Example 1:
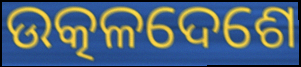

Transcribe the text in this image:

ଉତ୍କଳଦେଶେ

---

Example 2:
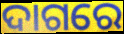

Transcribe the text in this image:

ଦାଗରେ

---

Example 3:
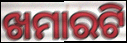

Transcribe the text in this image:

ଖମାରଟି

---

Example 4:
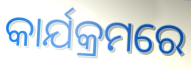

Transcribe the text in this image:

କାର୍ଯକ୍ରମରେ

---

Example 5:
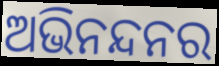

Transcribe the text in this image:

ଅଭିନନ୍ଦନର